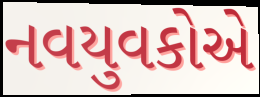
નવયુવકોએ